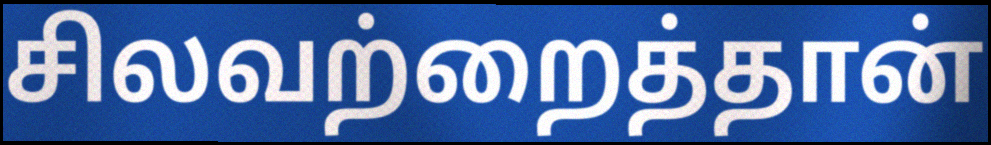
சிலவற்றைத்தான்